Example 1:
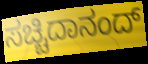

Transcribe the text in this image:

ಸಚ್ಚಿದಾನಂದ್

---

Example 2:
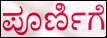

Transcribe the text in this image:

ಪೂರ್ಣಿಗೆ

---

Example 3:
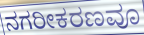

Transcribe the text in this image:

ನಗರೀಕರಣವೂ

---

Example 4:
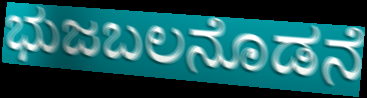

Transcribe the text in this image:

ಭುಜಬಲನೊಡನೆ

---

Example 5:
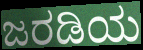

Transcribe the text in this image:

ಜರಡಿಯ